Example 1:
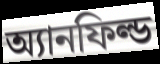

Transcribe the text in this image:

অ্যানফিল্ড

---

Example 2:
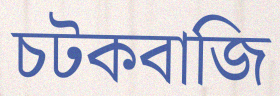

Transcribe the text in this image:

চটকবাজি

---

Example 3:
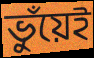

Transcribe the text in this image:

ভুঁয়েই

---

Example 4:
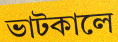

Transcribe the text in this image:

ভাটকালে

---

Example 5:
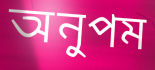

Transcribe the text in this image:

অনুপম